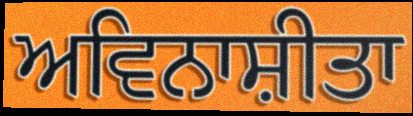
ਅਵਿਨਾਸ਼ੀਤਾ